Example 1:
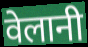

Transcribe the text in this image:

वेलानी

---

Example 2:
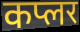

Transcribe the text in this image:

कप्लर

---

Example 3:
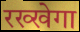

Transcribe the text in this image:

रख्खेगा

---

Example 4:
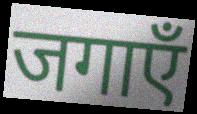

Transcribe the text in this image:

जगाएँ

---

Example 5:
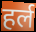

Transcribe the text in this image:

हर्ल